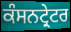
ਕੰਸਨਟ੍ਰੇਟਰ